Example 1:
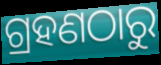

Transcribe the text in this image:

ଗ୍ରହଣଠାରୁ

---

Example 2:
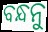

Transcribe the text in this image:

ବନ୍ଧନୁ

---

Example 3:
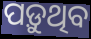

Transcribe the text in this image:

ପଡ଼ୁଥିବ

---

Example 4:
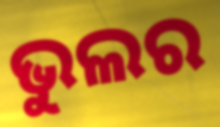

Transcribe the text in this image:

ଭୁଲର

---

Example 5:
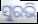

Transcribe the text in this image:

ସୁରଭି